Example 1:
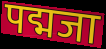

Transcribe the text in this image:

पद्मजा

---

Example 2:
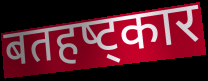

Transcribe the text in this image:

बतहष्ट्कार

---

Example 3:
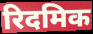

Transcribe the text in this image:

रिदमिक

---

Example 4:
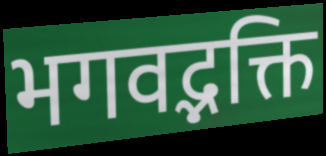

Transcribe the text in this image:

भगवद्भक्ति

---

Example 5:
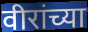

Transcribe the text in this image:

वीरांच्या